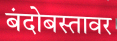
बंदोबस्तावर